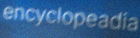
encyclopeadia